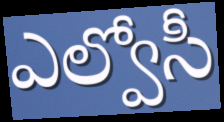
ఎల్వోసీ